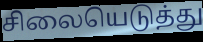
சிலையெடுத்து